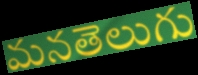
మనతెలుగు